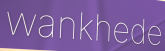
wankhede